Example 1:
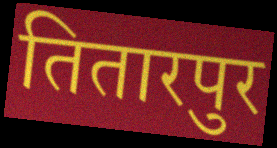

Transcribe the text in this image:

तितारपुर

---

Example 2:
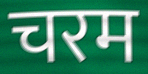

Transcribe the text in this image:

चरम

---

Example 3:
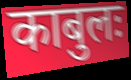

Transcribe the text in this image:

काबुलः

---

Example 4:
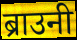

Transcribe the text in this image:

ब्राउनी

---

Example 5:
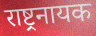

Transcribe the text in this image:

राष्ट्रनायक